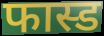
फास्ड